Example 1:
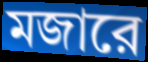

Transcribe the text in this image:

মজারে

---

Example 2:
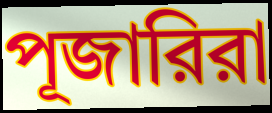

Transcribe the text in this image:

পূজারিরা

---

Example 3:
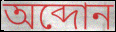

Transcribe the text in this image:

অব্দোন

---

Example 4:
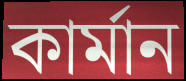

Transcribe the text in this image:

কার্মান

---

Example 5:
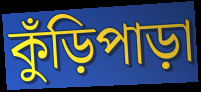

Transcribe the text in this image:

কুঁড়িপাড়া